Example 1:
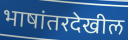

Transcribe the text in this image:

भाषांतरदेखील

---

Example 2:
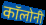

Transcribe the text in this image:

कॉलोनी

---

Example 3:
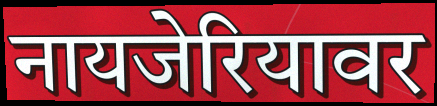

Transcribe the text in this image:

नायजेरियावर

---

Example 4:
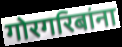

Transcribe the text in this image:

गोरगरिबांना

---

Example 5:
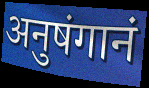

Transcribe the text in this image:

अनुषंगानं